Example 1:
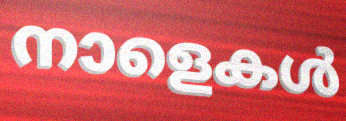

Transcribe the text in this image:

നാളെകൾ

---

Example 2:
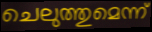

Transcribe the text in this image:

ചെലുത്തുമെന്ന്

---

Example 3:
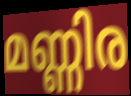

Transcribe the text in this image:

മണ്ണിര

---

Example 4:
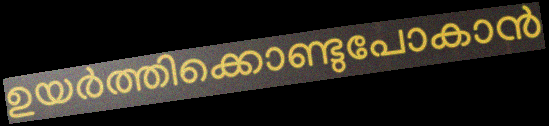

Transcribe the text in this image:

ഉയർത്തിക്കൊണ്ടുപോകാൻ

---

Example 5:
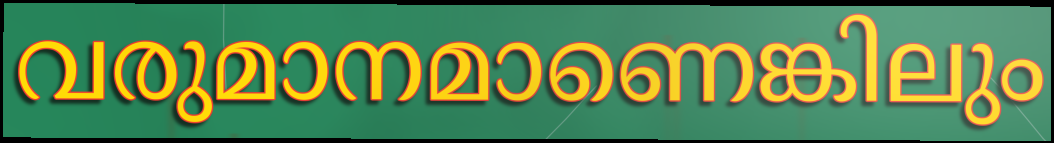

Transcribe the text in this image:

വരുമാനമാണെങ്കിലും